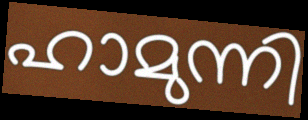
ഹാമുന്നി